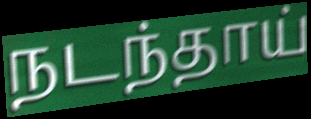
நடந்தாய்